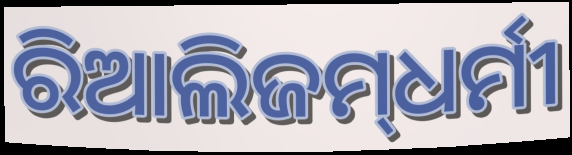
ରିଆଲିଜମ୍‌ଧର୍ମୀ